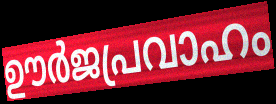
ഊർജപ്രവാഹം